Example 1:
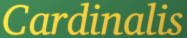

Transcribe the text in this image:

Cardinalis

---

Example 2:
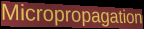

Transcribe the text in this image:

Micropropagation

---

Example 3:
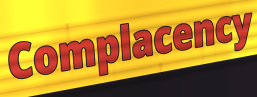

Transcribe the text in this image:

Complacency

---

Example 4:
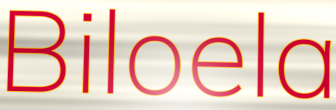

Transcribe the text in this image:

Biloela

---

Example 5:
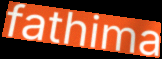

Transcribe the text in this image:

fathima